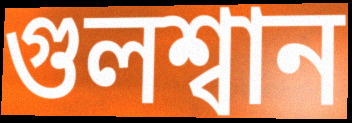
গুলশ্বান